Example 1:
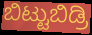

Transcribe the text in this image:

ಬಿಟ್ಟುಬಿಡ್ರಿ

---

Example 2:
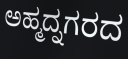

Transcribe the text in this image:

ಅಹ್ಮದ್ನಗರದ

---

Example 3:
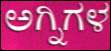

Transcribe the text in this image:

ಅಗ್ನಿಗಳ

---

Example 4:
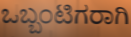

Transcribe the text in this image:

ಒಬ್ಬಂಟಿಗರಾಗಿ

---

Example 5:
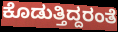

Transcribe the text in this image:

ಕೊಡುತ್ತಿದ್ದರಂತೆ